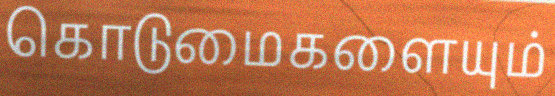
கொடுமைகளையும்